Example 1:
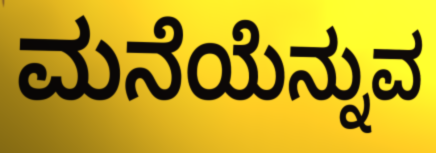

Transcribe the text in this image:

ಮನೆಯೆನ್ನುವ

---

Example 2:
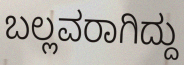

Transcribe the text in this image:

ಬಲ್ಲವರಾಗಿದ್ದು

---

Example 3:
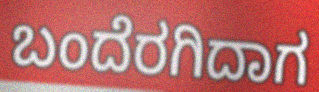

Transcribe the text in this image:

ಬಂದೆರಗಿದಾಗ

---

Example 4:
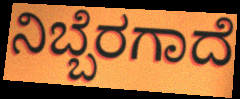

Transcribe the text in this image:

ನಿಬ್ಬೆರಗಾದೆ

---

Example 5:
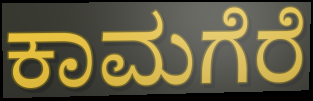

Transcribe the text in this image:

ಕಾಮಗೆರೆ